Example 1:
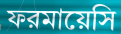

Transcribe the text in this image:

ফরমায়েসি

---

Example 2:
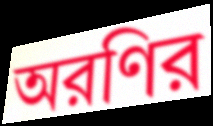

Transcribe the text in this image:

অরণির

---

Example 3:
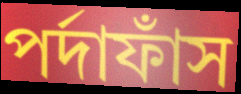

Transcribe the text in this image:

পর্দাফাঁস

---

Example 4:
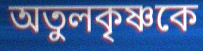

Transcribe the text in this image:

অতুলকৃষ্ণকে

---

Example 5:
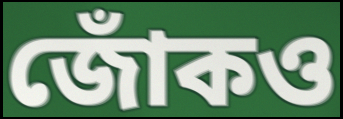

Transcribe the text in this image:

জোঁকও